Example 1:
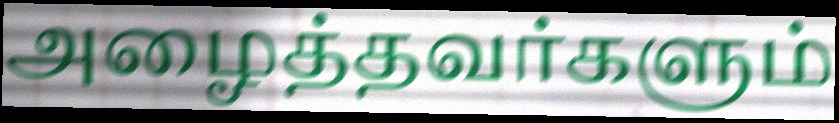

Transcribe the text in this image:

அழைத்தவர்களும்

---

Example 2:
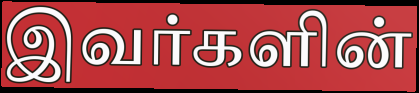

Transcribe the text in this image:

இவர்களின்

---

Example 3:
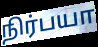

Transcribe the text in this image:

நிர்பயா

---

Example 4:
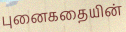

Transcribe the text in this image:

புனைகதையின்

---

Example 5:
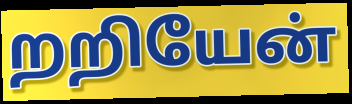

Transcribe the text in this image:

றறியேன்